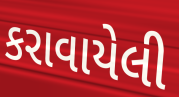
કરાવાયેલી